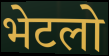
भेटलो